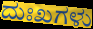
ದುಃಖಗಳು